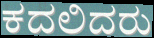
ಕದಲಿದರು